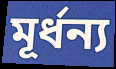
মূৰ্ধন্য